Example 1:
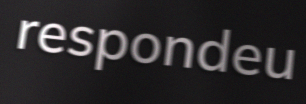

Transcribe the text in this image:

respondeu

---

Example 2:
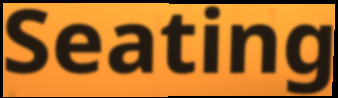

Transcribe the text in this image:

Seating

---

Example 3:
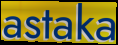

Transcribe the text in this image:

astaka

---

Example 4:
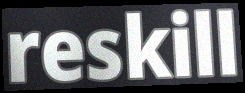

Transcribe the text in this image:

reskill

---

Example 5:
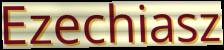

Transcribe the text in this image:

Ezechiasz